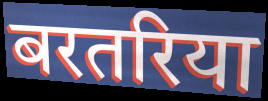
बरतरिया